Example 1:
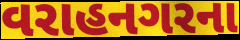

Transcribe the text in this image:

વરાહનગરના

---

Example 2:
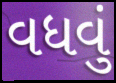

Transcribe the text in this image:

વધવું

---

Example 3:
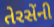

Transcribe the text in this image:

તેરસેંની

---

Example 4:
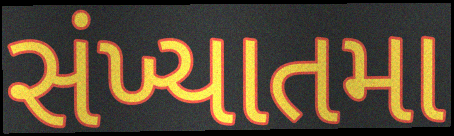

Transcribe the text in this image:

સંખ્યાતમા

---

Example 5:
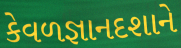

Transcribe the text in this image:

કેવળજ્ઞાનદશાને